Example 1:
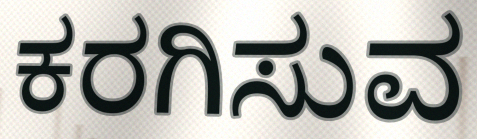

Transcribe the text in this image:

ಕರಗಿಸುವ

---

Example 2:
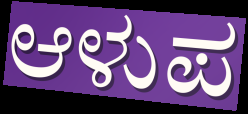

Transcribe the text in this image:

ಆಳುಪ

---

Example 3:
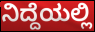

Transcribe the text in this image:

ನಿದ್ದೆಯಲ್ಲಿ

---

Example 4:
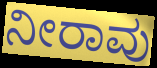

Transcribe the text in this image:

ನೀರಾವು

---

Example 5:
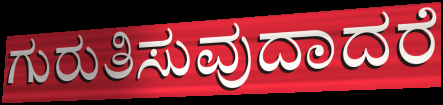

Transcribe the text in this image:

ಗುರುತಿಸುವುದಾದರೆ